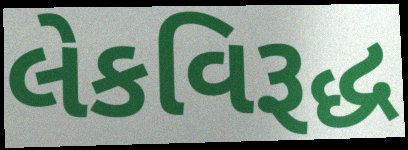
લેકવિરૂદ્ધ